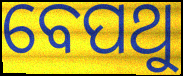
ବେପଥୁ